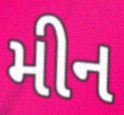
મીન